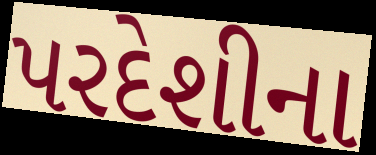
પરદેશીના